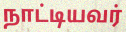
நாட்டியவர்